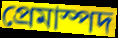
প্রেমাস্পদ